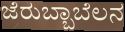
ಜೆರುಬ್ಬಾಬೆಲನ